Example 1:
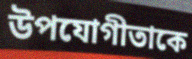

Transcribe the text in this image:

উপযোগীতাকে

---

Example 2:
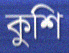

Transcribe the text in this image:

কুশি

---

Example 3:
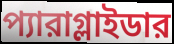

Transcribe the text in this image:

প্যারাগ্লাইডার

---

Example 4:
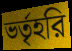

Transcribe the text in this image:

ভর্তৃহরি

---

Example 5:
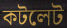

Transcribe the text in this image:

কটলেট